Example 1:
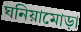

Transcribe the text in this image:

ঘনিয়ামোড়া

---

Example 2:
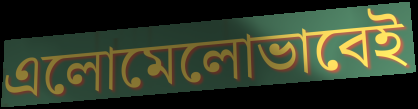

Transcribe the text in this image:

এলোমেলোভাবেই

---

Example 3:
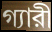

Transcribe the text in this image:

গ্যারী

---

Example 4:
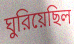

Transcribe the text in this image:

ঘুরিয়েছিল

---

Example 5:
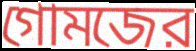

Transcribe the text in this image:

গোমজের